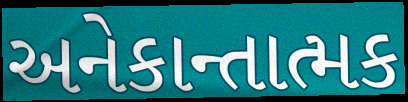
અનેકાન્તાત્મક